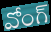
వోంగ్